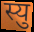
स्यु